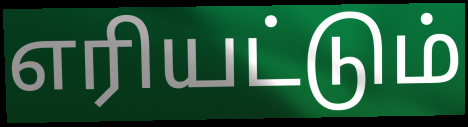
எரியட்டும்